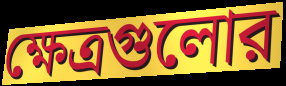
ক্ষেত্রগুলোর